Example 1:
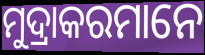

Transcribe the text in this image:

ମୁଦ୍ରାକରମାନେ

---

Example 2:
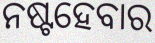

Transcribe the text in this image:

ନଷ୍ଟହେବାର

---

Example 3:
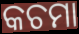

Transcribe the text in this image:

କଚମା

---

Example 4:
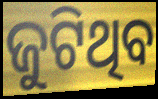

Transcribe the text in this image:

ଜୁଟିଥିବ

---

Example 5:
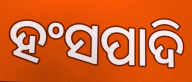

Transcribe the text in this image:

ହଂସପାଦି